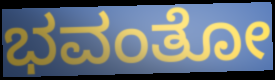
ಭವಂತೋ